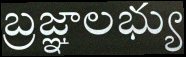
బ్రజ్ఞాలభ్యు